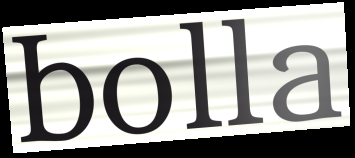
bolla